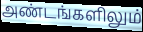
அண்டங்களிலும்